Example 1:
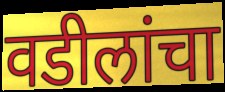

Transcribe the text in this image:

वडीलांचा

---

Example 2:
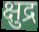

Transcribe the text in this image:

क्षुद्र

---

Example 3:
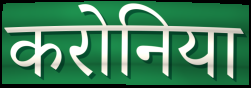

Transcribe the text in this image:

करोनिया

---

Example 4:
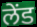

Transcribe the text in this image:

लेंड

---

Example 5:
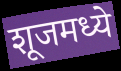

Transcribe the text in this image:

शूजमध्ये